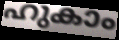
ഹുകാം